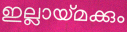
ഇല്ലായ്മക്കും